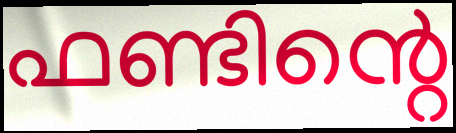
ഫണ്ടിന്റെ